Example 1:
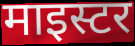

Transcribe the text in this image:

माइस्टर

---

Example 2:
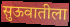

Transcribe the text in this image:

सुऊवातीला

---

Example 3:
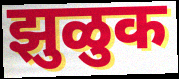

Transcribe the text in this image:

झुळुक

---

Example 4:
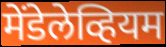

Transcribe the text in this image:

मेंडेलेव्हियम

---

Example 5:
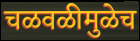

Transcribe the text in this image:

चळवळीमुळेच